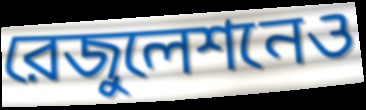
রেজুলেশনেও